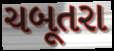
ચબૂતરા